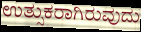
ಉತ್ಸುಕರಾಗಿರುವುದು